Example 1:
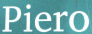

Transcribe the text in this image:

Piero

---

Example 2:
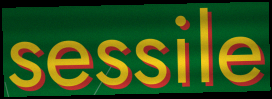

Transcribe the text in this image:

sessile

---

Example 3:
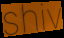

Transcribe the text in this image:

shiv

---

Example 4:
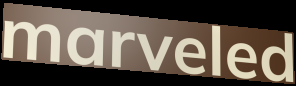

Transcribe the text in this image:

marveled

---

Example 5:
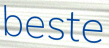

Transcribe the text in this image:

beste